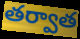
తర్వాత